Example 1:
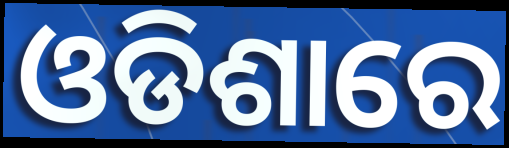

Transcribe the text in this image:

ଓଡିଶାରେ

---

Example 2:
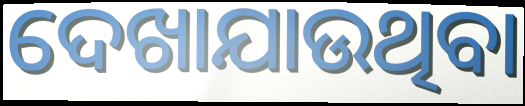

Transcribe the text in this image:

ଦେଖାଯାଉଥିବା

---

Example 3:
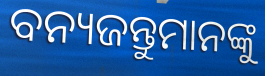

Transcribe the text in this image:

ବନ୍ୟଜନ୍ତୁମାନଙ୍କୁ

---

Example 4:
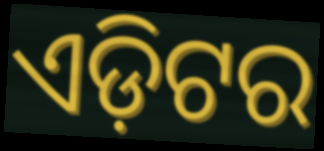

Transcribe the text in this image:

ଏଡ଼ିଟର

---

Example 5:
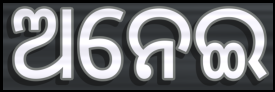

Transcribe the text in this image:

ଅନେଇ